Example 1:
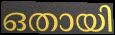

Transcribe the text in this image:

ഒതായി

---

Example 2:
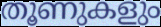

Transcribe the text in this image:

തൂണുകളും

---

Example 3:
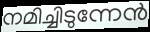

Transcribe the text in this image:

നമിച്ചിടുന്നേൻ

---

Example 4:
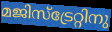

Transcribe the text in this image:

മജിസ്ട്രേറ്റിനു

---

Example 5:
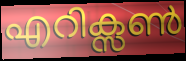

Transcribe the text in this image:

എറിക്സൺ